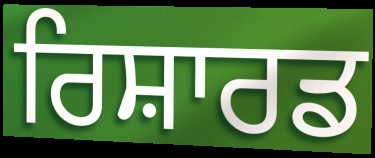
ਰਿਸ਼ਾਰਡ